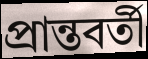
প্রান্তবর্তী